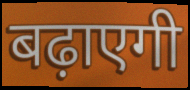
बढ़ाएगी